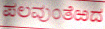
ಪಲವುಂತೆಱದ